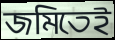
জমিতেই